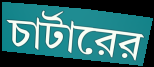
চার্টারের